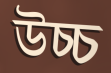
উচ্চ